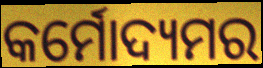
କର୍ମୋଦ୍ୟମର